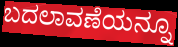
ಬದಲಾವಣೆಯನ್ನೂ